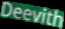
Deevith